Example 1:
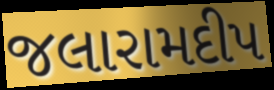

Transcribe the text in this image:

જલારામદીપ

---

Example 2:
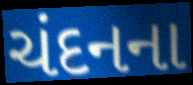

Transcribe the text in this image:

ચંદનના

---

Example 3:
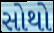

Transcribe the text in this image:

સોથો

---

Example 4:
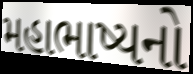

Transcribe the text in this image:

મહાભાષ્યનો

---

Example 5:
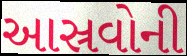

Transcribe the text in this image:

આસ્રવોની